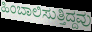
ಹಿಂಬಾಲಿಸುತ್ತಿದ್ದವು